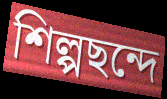
শিল্পছন্দে